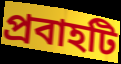
প্রবাহটি